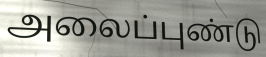
அலைப்புண்டு